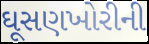
ઘૂસણખોરીની